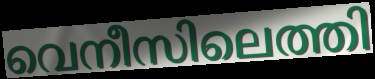
വെനീസിലെത്തി